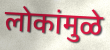
लोकांमुळे